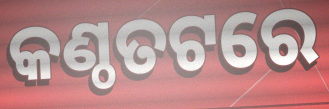
କଣ୍ଠତଟରେ